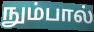
நும்பால்